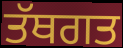
ਤੱਥਗਤ